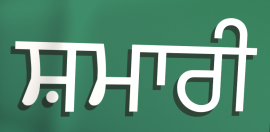
ਸ਼ਮਾਰੀ